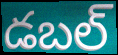
డబల్